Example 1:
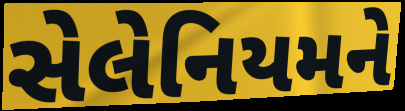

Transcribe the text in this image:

સેલેનિયમને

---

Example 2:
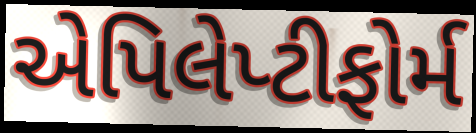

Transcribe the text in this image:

એપિલેપ્ટીફોર્મ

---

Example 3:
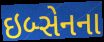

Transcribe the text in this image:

ઇબ્સેનના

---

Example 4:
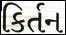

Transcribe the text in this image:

કિર્તન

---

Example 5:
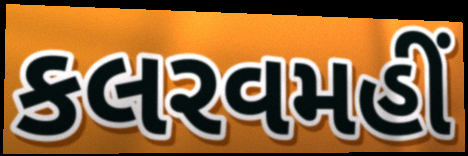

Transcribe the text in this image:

કલરવમહીં